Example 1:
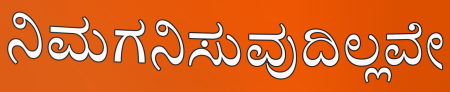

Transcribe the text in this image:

ನಿಮಗನಿಸುವುದಿಲ್ಲವೇ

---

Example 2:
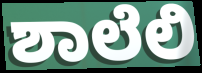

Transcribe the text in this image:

ಶಾಲೆಲಿ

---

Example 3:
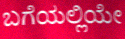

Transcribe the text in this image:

ಬಗೆಯಲ್ಲಿಯೇ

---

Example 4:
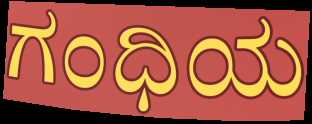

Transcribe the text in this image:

ಗಂಧಿಯ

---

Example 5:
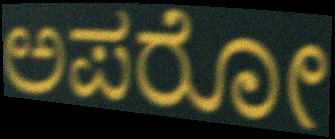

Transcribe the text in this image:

ಅಪರೋ